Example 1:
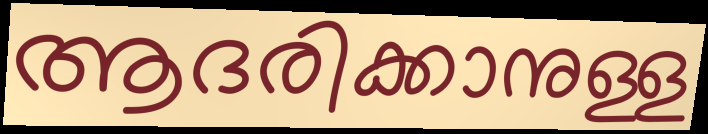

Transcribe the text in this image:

ആദരിക്കാനുള്ള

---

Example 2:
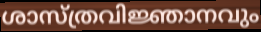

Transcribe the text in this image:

ശാസ്ത്രവിജ്ഞാനവും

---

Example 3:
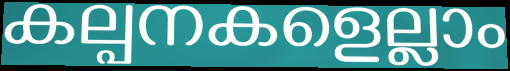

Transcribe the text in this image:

കല്പനകളെല്ലാം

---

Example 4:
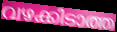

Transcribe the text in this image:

വഴക്കിടാത്ത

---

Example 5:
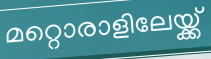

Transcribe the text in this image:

മറ്റൊരാളിലേയ്ക്ക്